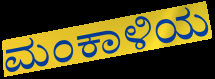
ಮಂಕಾಳಿಯ